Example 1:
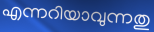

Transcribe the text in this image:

എന്നറിയാവുന്നതു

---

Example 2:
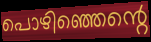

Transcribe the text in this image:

പൊഴിഞ്ഞെന്റെ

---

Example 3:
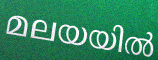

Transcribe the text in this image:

മലയയിൽ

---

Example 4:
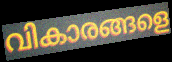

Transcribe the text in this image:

വികാരങ്ങളെ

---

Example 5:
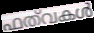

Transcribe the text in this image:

ഫത്‌വകൾ